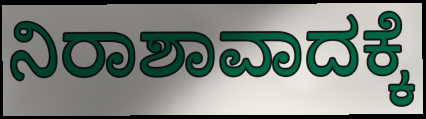
ನಿರಾಶಾವಾದಕ್ಕೆ